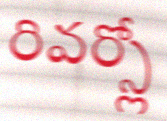
రివర్స్లో